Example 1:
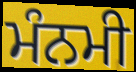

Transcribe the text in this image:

ਮੰਨਮੀ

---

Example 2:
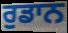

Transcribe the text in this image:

ਰੁਡਾਨ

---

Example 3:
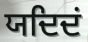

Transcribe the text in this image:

ਯਦਿਦਂ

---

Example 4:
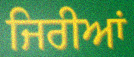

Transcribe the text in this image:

ਜਿਰੀਆਂ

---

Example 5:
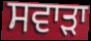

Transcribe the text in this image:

ਸਵਾੜਾ